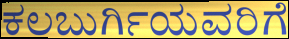
ಕಲಬುರ್ಗಿಯವರಿಗೆ